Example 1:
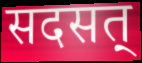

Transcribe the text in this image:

सदसत्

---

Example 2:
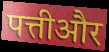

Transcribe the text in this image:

पत्तीऔर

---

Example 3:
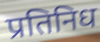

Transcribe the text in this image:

प्रतिनिध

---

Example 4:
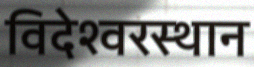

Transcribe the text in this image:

विदेश्वरस्थान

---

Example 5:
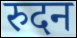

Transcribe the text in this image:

रुदन